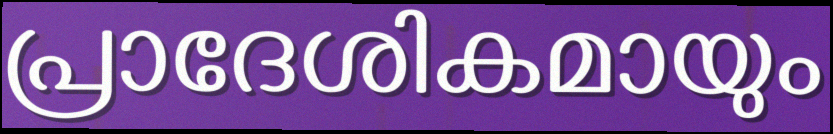
പ്രാദേശികമായും